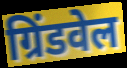
ग्रिंडवेल